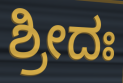
ಶ್ರೀದಃ